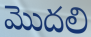
మొదలి